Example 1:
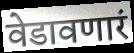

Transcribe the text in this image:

वेडावणारं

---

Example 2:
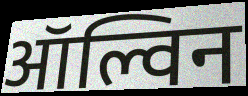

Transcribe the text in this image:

ऑल्विन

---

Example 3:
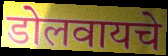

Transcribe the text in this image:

डोलवायचे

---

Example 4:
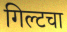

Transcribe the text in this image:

गिल्टचा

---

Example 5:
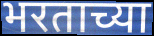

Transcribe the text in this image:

भरताच्या